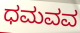
ಧಮವವ